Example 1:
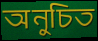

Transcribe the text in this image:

অনুচিত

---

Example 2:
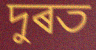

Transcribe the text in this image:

দুৰত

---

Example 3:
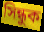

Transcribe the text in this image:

সিন্ধুক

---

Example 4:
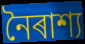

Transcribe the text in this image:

নৈৰাশ্য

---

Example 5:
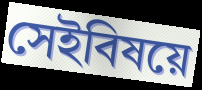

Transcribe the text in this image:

সেইবিষয়ে